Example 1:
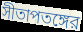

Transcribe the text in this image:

সীতাপতঙ্গের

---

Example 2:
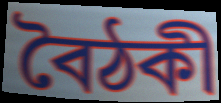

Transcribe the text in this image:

বৈঠকী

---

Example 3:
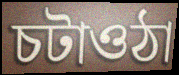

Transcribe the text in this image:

চটাওঠা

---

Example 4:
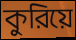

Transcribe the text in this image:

কুরিয়ে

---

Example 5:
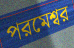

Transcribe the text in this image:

পরমেশ্বর